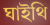
ঘাইথি